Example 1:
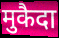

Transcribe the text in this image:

मुकैदा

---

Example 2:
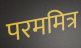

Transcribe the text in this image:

परममित्र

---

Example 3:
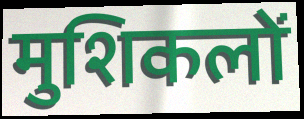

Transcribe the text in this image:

मुशिकलों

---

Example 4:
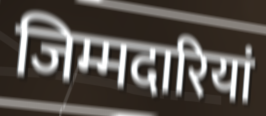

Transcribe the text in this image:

जिम्मदारियां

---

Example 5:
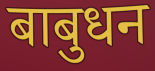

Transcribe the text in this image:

बाबुधन